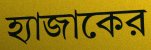
হ্যাজাকের